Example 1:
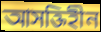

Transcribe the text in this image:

আসক্তিহীন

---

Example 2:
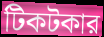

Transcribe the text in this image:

টিকটকার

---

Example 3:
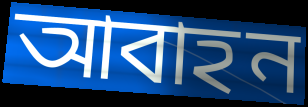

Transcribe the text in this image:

আবাহন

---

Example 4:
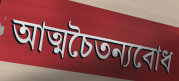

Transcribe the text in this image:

আত্মচৈতন্যবোধ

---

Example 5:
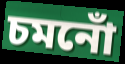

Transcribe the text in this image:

চমনোঁ